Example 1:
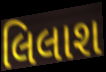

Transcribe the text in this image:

લિલાશ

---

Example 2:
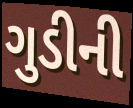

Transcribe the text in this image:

ગુડીની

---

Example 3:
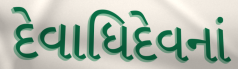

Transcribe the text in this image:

દેવાધિદેવનાં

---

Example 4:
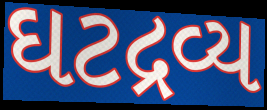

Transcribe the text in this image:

ઘટદ્રવ્ય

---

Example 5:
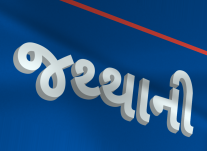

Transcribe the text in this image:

જથ્થાની